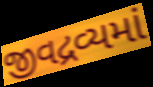
જીવદ્રવ્યમાં